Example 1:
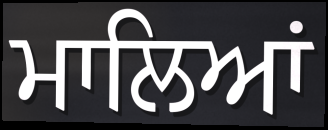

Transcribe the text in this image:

ਮਾਲਿਆਂ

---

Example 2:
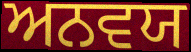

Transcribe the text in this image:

ਅਨਵਯ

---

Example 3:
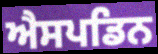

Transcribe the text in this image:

ਐਸਪਡਿਨ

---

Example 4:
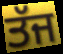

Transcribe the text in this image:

ਤੱਜ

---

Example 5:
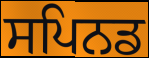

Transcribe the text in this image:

ਸਪਿਨਡ